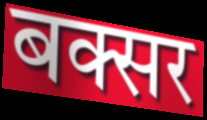
बक्सर